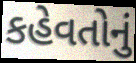
કહેવતોનું